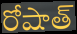
రోషాత్